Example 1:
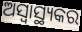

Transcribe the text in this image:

ଅସ୍ବାସ୍ଥ୍ୟକର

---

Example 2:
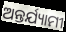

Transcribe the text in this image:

ଅନ୍ତର୍ଯ୍ୟାମୀ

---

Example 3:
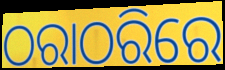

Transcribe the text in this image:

ଠରାଠରିରେ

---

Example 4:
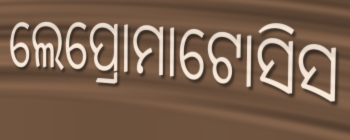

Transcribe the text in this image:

ଲେପ୍ରୋମାଟୋସିସ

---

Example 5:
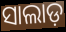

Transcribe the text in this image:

ସାଲାଡ଼